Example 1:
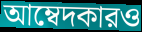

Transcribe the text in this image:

আম্বেদকারও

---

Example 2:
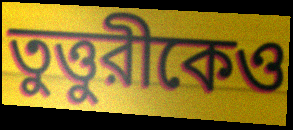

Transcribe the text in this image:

তুত্তুরীকেও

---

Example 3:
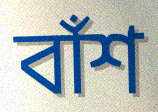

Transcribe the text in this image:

বাঁশ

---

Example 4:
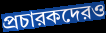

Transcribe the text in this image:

প্রচারকদেরও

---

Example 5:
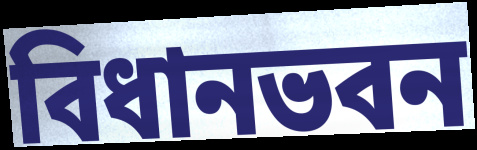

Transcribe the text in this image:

বিধানভবন